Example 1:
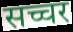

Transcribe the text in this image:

सच्चर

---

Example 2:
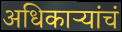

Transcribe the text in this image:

अधिकाऱ्यांचं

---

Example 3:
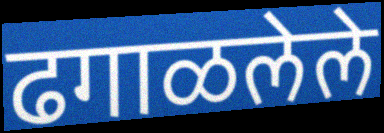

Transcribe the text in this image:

ढगाळलेले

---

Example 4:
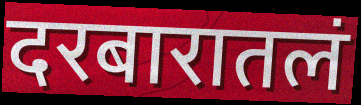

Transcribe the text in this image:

दरबारातलं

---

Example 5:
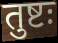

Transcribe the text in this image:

तुष्टः